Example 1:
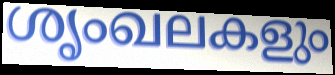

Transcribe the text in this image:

ശൃംഖലകളും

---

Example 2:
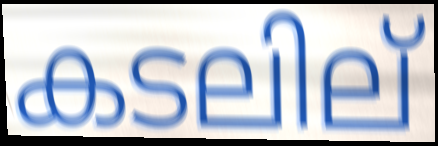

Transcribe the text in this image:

കടലില്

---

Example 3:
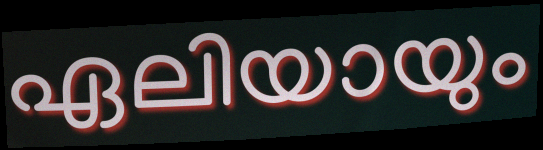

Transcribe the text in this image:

ഏലിയായും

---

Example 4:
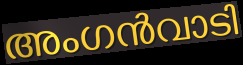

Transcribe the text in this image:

അംഗൻവാടി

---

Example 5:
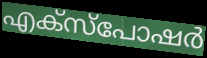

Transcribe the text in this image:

എക്സ്പോഷർ